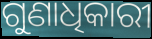
ଗୁଣାଧିକାରୀ